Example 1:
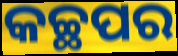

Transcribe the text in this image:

କଚ୍ଛପର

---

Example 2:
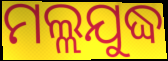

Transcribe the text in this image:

ମଲ୍ଲଯୁଦ୍ଧ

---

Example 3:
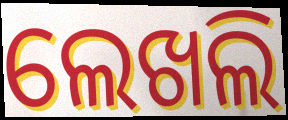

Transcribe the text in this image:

ଲେଖଲି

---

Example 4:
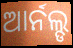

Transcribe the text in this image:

ଆର୍ନଲ୍ଡ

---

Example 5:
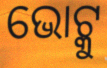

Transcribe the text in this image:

ଭୋଟ୍କୁ